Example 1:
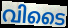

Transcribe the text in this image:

വിടൈ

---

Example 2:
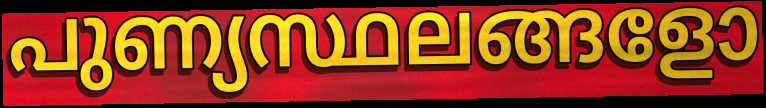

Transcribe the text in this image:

പുണ്യസ്ഥലങ്ങളോ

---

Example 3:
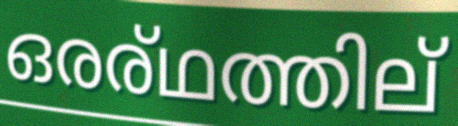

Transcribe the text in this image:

ഒരര്ഥത്തില്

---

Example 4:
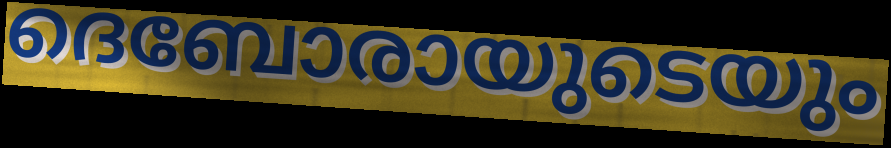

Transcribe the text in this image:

ദെബോരായുടെയും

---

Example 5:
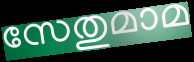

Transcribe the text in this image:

സേതുമാമ